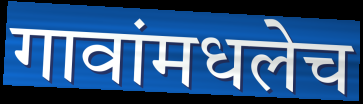
गावांमधलेच